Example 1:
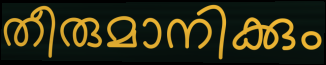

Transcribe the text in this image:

തീരുമാനിക്കും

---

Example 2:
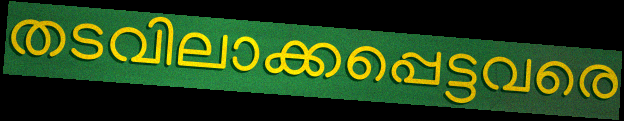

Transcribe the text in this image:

തടവിലാക്കപ്പെട്ടവരെ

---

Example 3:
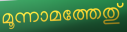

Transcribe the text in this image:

മൂന്നാമത്തേതു്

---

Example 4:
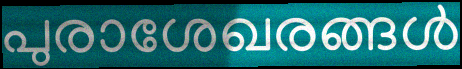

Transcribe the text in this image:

പുരാശേഖരങ്ങൾ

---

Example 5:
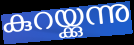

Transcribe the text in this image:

കുറയ്ക്കുന്നു